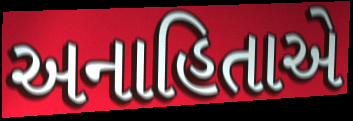
અનાહિતાએ